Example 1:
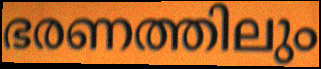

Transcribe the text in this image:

ഭരണത്തിലും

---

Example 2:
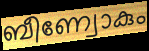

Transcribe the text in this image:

ബീണ്വോകും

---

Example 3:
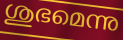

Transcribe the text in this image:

ശുഭമെന്നു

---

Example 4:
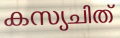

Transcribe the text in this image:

കസ്യചിത്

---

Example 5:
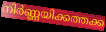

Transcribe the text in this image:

നിർണ്ണയിക്കത്തക്ക